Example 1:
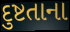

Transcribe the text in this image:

દુષ્ટતાના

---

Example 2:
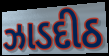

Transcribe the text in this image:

ઝાડદીઠ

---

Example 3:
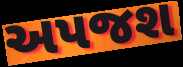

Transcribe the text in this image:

અપજશ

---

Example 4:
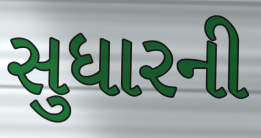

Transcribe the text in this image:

સુધારની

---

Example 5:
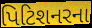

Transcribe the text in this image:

પિટિશનરના